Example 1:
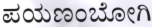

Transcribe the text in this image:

ಪಯಣಂಬೋಗಿ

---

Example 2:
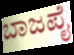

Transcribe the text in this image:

ಬಾಜಪೈ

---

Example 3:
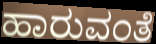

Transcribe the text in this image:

ಹಾರುವಂತೆ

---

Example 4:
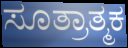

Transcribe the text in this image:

ಸೂತ್ರಾತ್ಮಕ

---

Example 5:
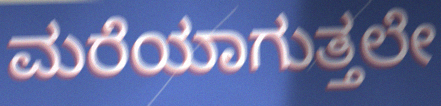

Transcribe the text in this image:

ಮರೆಯಾಗುತ್ತಲೇ